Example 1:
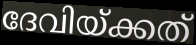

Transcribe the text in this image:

ദേവിയ്ക്കത്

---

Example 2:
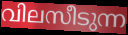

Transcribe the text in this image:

വിലസീടുന്ന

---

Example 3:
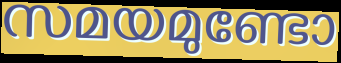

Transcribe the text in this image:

സമയമുണ്ടോ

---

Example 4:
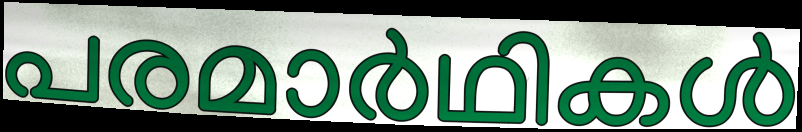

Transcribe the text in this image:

പരമാർഥികൾ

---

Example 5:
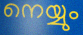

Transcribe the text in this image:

നെയ്യും